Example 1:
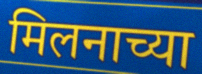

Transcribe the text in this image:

मिलनाच्या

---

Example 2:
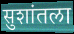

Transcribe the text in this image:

सुशांतला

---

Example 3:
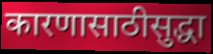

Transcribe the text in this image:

कारणासाठीसुद्धा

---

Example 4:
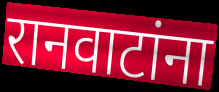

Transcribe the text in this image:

रानवाटांना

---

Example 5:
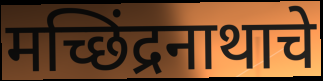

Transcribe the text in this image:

मच्छिंद्रनाथाचे